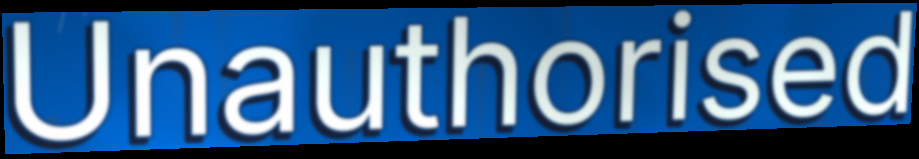
Unauthorised